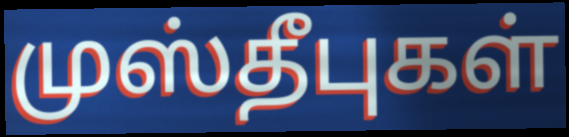
முஸ்தீபுகள்